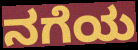
ನಗೆಯ